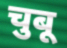
चुबू